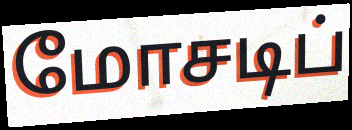
மோசடிப்